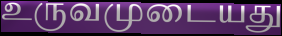
உருவமுடையது